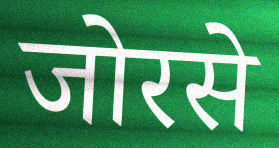
जोरसे